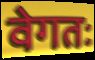
वेगतः